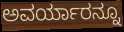
ಅವರ್ಯಾರನ್ನೂ